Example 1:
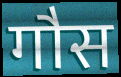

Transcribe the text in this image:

गौस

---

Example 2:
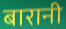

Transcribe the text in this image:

बारानी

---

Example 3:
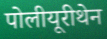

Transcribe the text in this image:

पोलीयूरीथेन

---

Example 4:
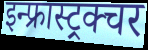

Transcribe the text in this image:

इन्फ्रास्ट्रक्चर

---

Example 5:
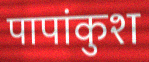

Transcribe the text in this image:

पापांकुश